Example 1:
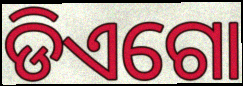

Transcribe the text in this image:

ଡିଏଗୋ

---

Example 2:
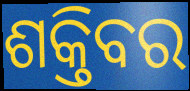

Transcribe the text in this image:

ଶକ୍ତିବର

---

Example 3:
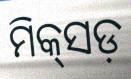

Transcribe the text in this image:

ମିକ୍‌ସଡ଼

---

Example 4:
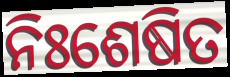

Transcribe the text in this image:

ନିଃଶେଷିତ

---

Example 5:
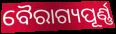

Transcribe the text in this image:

ବୈରାଗ୍ୟପୂର୍ଣ୍ଣ